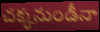
చక్కనుండీనా